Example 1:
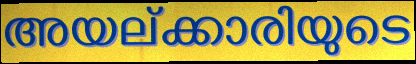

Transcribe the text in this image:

അയല്ക്കാരിയുടെ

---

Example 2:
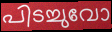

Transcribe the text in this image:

പിടച്ചുവോ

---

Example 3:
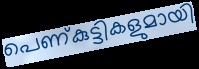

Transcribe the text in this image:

പെണ്കുട്ടികളുമായി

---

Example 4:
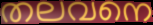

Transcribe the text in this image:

തലവനെ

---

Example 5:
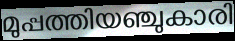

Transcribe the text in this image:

മുപ്പത്തിയഞ്ചുകാരി